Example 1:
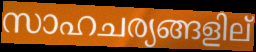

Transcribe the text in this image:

സാഹചര്യങ്ങളില്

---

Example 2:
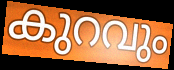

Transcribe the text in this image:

കുറവും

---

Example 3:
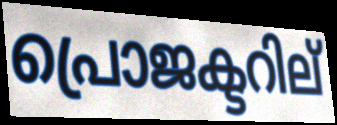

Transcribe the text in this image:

പ്രൊജക്ടറില്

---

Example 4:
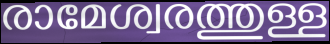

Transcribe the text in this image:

രാമേശ്വരത്തുള്ള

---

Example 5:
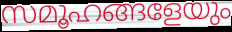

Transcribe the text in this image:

സമൂഹങ്ങളേയും